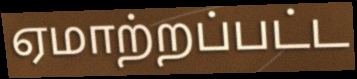
ஏமாற்றப்பட்ட